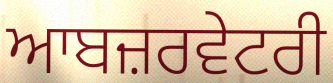
ਆਬਜ਼ਰਵੇਟਰੀ